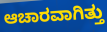
ಆಚಾರವಾಗಿತ್ತು